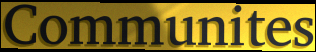
Communites